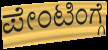
ಪೇಂಟಿಂಗ್ಗೆ